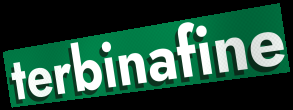
terbinafine